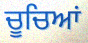
ਚੂਚਿਆਂ